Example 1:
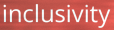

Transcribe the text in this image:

inclusivity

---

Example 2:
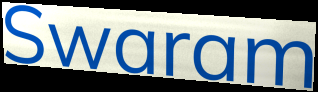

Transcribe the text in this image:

Swaram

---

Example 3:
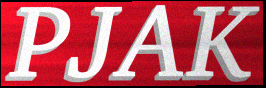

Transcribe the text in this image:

PJAK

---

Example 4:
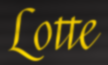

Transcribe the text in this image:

Lotte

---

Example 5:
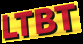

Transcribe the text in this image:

LTBT